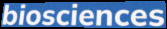
biosciences